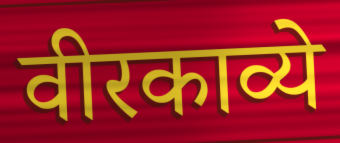
वीरकाव्ये